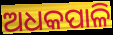
ଅଧକପାଳି